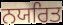
ਨਯਰਿਤ